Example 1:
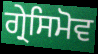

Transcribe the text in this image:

ਗ੍ਰੇਸਿਮੋਵ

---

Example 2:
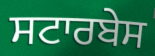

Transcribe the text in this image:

ਸਟਾਰਬੇਸ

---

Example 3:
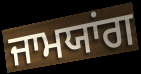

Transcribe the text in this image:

ਜਾਮਯਾਂਗ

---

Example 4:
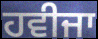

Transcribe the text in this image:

ਹਵੀਜਾ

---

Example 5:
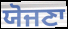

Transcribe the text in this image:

ਯੋਜਣਾ